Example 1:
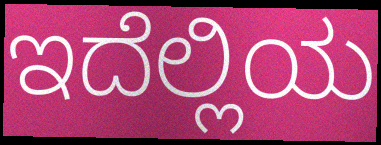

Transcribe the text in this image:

ಇದೆಲ್ಲಿಯ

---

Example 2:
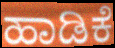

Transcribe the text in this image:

ಹಾಡಿಕೆ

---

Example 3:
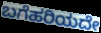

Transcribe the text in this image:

ಬಗೆಹರಿಯದೇ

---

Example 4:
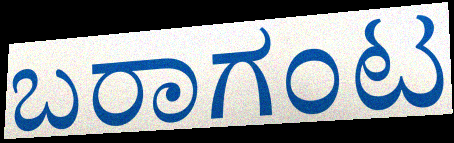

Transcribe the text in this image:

ಬರಾಗಂಟ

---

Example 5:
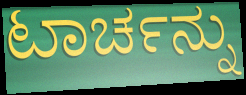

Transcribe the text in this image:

ಟಾರ್ಚನ್ನು